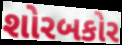
શોરબકોર